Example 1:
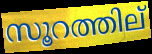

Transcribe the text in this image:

സൂറത്തില്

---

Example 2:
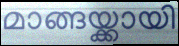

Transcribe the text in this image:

മാങ്ങയ്ക്കായി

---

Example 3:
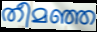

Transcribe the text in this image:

തീമഞ്ഞ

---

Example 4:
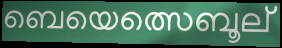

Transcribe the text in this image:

ബെയെത്സെബൂല്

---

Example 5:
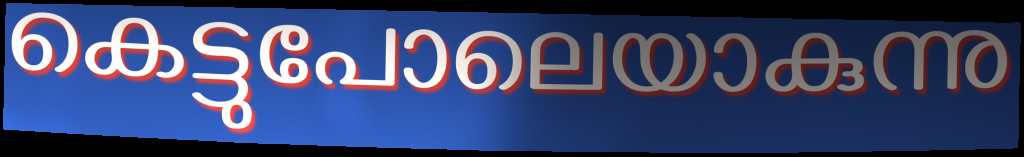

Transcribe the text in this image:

കെട്ടുപോലെയാകുന്നു